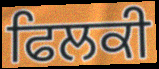
ਫਿਲਕੀ